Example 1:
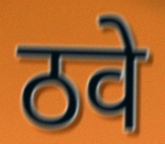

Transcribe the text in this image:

ठवे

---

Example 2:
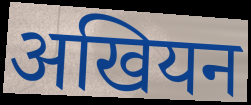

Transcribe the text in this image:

अखियन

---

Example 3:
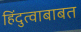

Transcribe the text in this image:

हिंदुत्वाबाबत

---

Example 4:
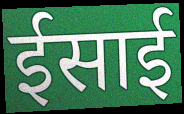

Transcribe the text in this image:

ईसाई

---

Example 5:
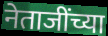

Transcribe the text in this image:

नेताजींच्या